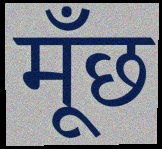
मूँछ